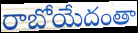
రాబోయేదంతా